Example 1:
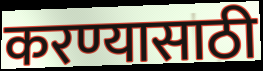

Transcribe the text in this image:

करण्‍यासाठी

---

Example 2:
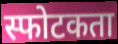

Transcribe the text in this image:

स्फोटकता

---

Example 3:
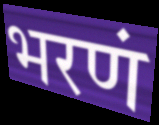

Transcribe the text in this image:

भरणं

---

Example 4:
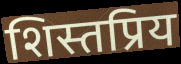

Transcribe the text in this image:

शिस्तप्रिय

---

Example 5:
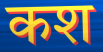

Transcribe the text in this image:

कश